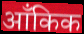
आँकिक